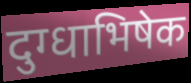
दुग्धाभिषेक